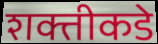
शक्तीकडे